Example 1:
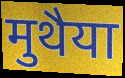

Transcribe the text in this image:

मुथैया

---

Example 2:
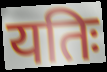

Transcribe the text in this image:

यतिः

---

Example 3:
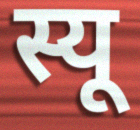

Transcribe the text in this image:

स्यू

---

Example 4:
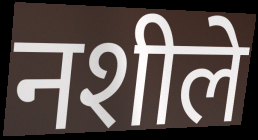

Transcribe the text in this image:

नशीले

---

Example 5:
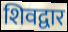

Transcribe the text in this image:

शिवद्वार